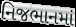
નિજભાનમાં